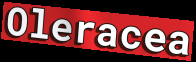
Oleracea